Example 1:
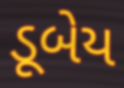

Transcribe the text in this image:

ડૂબેય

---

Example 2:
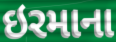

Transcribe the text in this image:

ઇરમાના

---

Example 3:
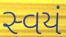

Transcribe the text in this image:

સ્વયં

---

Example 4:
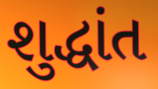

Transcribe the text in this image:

શુદ્ધાંત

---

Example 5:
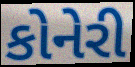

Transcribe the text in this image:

કોનેરી